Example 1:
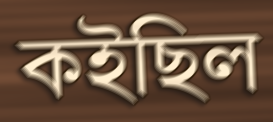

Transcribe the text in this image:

কইছিল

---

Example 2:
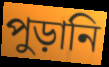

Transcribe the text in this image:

পুড়ানি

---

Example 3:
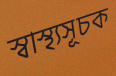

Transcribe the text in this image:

স্বাস্থ্যসূচক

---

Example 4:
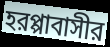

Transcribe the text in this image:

হরপ্পাবাসীর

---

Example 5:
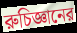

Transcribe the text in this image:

রুচিজ্ঞানের